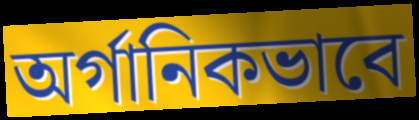
অর্গানিকভাবে